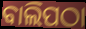
ବାଲିପଠା